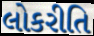
લોકરીતિ